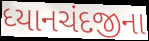
ધ્યાનચંદજીના